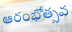
ఆరంభోత్సవ